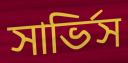
সার্ভিস